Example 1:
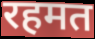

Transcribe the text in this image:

रहमत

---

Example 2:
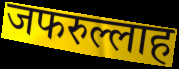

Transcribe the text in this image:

जफरुल्लाह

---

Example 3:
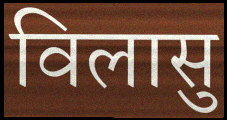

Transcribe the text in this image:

विलासु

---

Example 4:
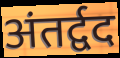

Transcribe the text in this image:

अंतर्द्वद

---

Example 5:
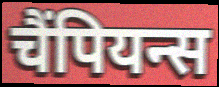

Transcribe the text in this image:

चैंपियन्स